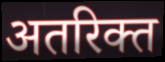
अतरिक्त